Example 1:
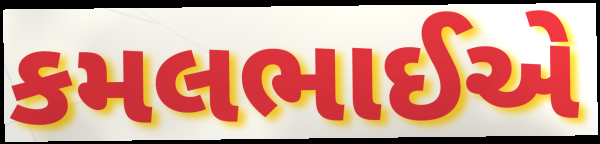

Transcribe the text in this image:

કમલભાઈએ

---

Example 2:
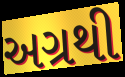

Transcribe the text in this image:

અગ્રથી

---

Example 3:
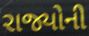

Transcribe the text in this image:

રાજ્યોની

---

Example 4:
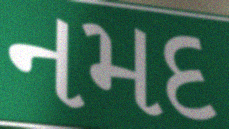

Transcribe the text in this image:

નમદ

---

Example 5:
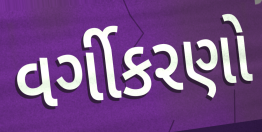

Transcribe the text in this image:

વર્ગીકરણો